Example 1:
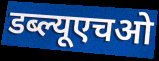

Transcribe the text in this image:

डब्ल्यूएचओ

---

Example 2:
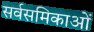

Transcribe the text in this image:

सर्वसमिकाओं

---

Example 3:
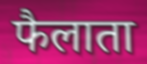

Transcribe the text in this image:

फैलाता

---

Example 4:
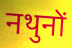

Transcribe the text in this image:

नथुनों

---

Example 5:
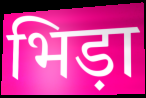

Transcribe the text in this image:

भिड़ा